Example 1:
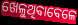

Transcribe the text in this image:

ଖେଳୁଥିବାବେଳେ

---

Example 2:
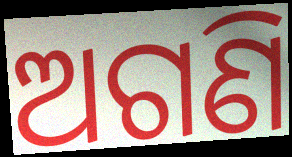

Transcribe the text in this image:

ଅଗଣି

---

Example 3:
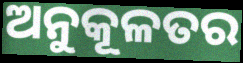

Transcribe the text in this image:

ଅନୁକୂଳତର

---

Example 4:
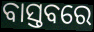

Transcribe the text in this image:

ବାସ୍ତବରେ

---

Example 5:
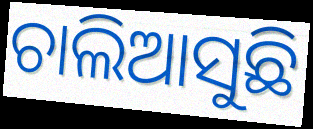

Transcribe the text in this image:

ଚାଲିଆସୁଛି